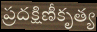
ప్రదక్షిణీకృత్య